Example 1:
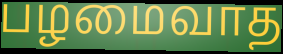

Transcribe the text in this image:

பழமைவாத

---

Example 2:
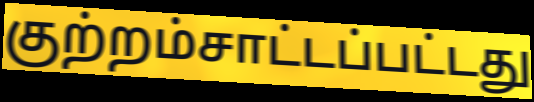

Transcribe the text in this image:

குற்றம்சாட்டப்பட்டது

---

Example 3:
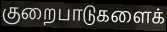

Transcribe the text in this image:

குறைபாடுகளைக்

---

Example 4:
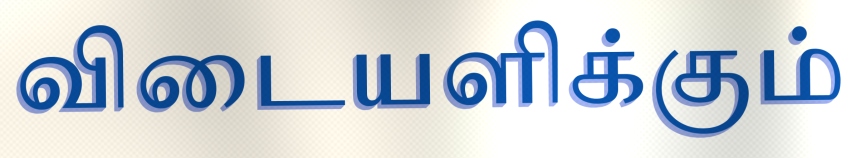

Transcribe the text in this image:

விடையளிக்கும்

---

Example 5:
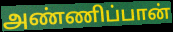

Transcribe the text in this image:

அண்ணிப்பான்